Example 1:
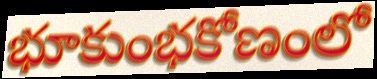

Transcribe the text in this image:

భూకుంభకోణంలో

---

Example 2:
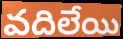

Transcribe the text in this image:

వదిలేయి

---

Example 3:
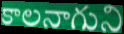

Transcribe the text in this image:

కాలనాగుని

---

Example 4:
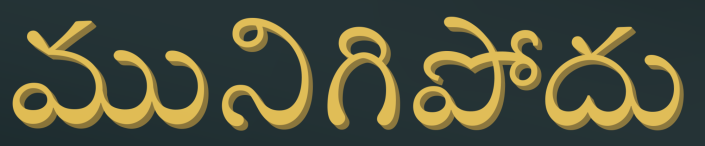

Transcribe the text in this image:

మునిగిపోదు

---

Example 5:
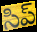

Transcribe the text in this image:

సిప్